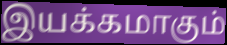
இயக்கமாகும்